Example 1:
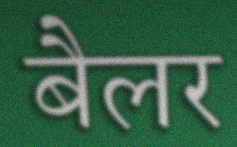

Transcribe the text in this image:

बैलर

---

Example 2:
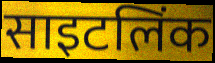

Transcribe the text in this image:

साइटलिंक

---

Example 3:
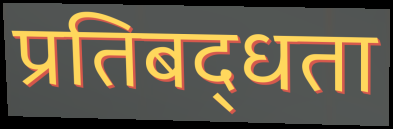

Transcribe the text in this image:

प्रतिबद्धता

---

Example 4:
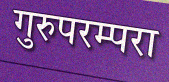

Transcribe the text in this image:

गुरुपरम्परा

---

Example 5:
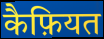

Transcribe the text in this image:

कैफ़ियत